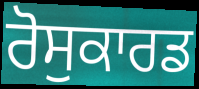
ਰੋਸੁਕਾਰਡ